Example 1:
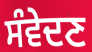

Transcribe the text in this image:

ਸੰਵੇਦਣ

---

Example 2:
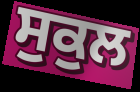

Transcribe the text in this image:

ਸੁਕੁਲ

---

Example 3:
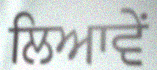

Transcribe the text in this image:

ਲਿਆਵੇਂ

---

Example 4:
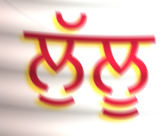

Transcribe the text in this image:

ਲੁੱਲੂ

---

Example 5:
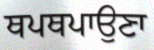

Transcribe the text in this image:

ਥਪਥਪਾਉਣਾ